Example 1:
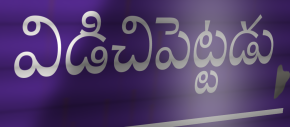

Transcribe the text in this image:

విడిచిపెట్టడు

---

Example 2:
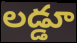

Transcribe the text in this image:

లడ్డూ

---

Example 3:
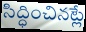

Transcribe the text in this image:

సిద్ధించినట్లే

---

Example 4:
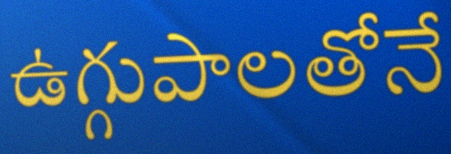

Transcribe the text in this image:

ఉగ్గుపాలతోనే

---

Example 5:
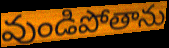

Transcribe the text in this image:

వుండిపోతాను